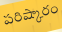
పరిష్కారం